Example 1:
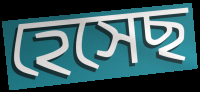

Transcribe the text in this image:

হেসেছ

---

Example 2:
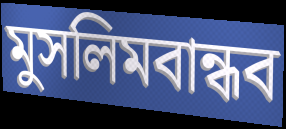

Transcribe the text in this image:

মুসলিমবান্ধব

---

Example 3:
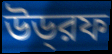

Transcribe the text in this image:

উড্‌রফ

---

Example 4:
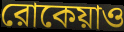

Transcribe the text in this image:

রোকেয়াও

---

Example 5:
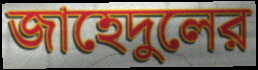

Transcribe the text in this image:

জাহেদুলের